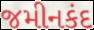
જમીનકંદ